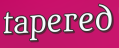
tapered